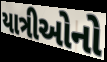
યાત્રીઓનો